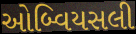
ઓબ્વિયસલી